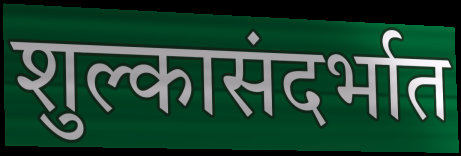
शुल्कासंदर्भात